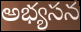
అభ్యసన